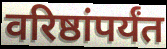
वरिष्ठांपर्यंत